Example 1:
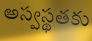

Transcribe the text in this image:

అస్వస్థతకు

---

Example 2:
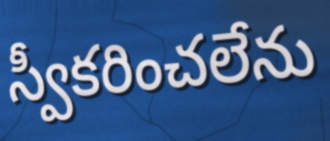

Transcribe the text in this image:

స్వీకరించలేను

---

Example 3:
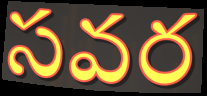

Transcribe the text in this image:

సవర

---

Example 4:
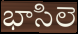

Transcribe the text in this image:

భాసిలె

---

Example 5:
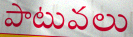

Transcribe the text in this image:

పాటువలు